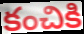
కంచికి